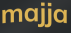
majja